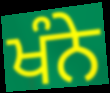
ਖੰਨੇ